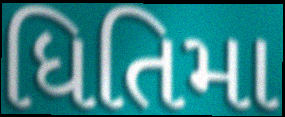
ધિતિમા